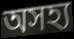
অসহ্য